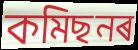
কমিছনৰ